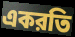
একরতি